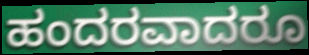
ಹಂದರವಾದರೂ